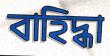
বাহিদ্ধা